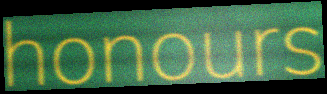
honours